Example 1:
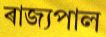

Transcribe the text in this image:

ৰাজ্যপাল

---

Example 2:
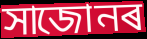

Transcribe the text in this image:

সাজোনৰ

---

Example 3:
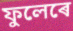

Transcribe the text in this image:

ফুলেৰে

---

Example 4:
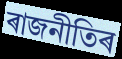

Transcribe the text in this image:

ৰাজনীতিৰ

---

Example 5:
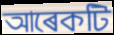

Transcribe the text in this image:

আৰেকটি